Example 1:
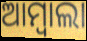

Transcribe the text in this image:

ଆମ୍ବାଲା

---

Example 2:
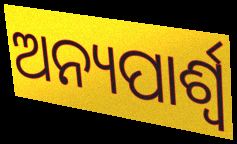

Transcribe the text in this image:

ଅନ୍ୟପାର୍ଶ୍ୱ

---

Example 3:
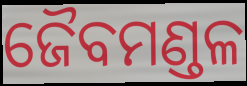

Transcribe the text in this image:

ଜୈବମଣ୍ଡଳ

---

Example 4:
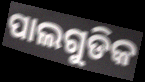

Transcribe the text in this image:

ପାଲଗୁଡିକ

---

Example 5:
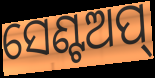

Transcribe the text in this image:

ସେଣ୍ଟଅପ୍